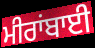
ਮੀਰਾਂਬਾਈ